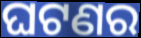
ଘଟଣର